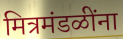
मित्रमंडळींना